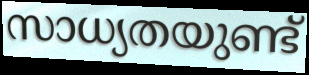
സാധ്യതയുണ്ട്